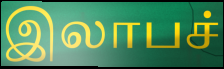
இலாபச்